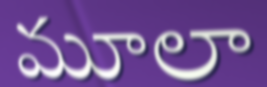
మూలా